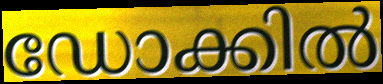
ഡോക്കിൽ